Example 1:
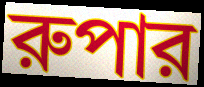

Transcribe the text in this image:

রুপার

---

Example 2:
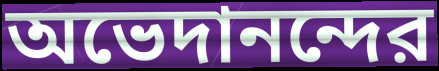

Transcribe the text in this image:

অভেদানন্দের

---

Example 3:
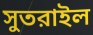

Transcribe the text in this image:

সুতরাইল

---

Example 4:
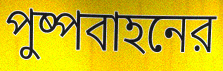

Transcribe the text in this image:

পুষ্পবাহনের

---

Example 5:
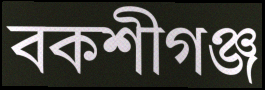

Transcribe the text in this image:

বকশীগঞ্জ